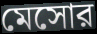
মেসোর